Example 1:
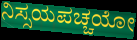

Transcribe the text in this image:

ನಿಸ್ಸಯಪಚ್ಚಯೋ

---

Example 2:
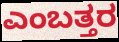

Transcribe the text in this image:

ಎಂಬತ್ತರ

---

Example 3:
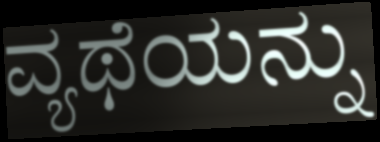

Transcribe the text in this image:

ವ್ಯಥೆಯನ್ನು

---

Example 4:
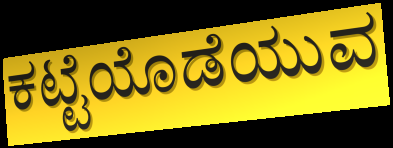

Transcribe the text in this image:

ಕಟ್ಟೆಯೊಡೆಯುವ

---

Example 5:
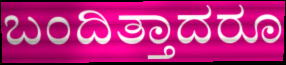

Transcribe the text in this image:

ಬಂದಿತ್ತಾದರೂ